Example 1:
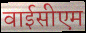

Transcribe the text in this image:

वाईसीएम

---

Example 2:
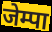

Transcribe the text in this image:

जेम्पा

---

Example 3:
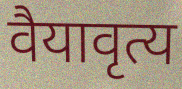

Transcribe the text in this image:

वैयावृत्य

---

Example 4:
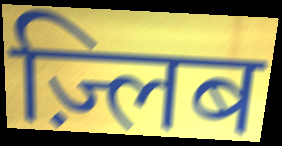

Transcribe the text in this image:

ज़्लिब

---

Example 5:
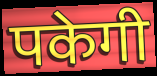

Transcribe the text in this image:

पकेगी